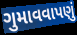
ગુમાવવાપણું